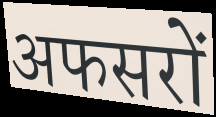
अफसरों